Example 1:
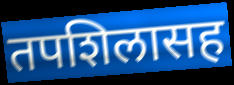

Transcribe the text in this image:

तपशिलासह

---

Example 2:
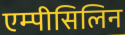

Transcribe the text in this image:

एम्पीसिलिन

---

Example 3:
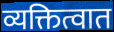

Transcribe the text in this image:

व्यक्तित्वात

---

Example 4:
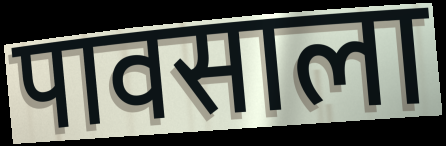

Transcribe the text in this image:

पावसाला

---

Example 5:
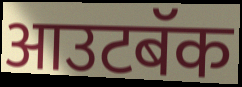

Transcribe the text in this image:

आउटबॅक